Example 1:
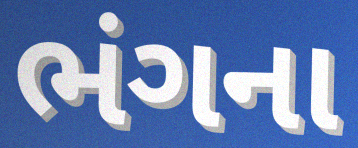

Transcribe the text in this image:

ભંગના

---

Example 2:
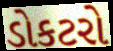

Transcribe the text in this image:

ડોકટરો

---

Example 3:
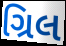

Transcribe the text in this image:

ગ્રિલ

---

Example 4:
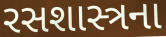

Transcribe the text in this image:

રસશાસ્ત્રના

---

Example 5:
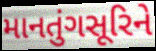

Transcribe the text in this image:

માનતુંગસૂરિને